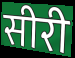
सीरी